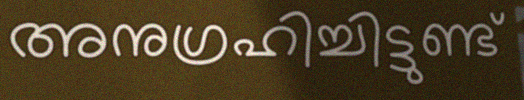
അനുഗ്രഹിച്ചിട്ടുണ്ട്